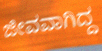
ಜೀವವಾಗಿದ್ದ